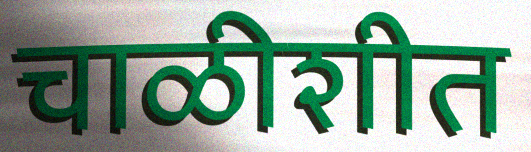
चाळीशीत